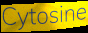
Cytosine